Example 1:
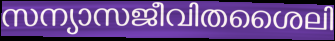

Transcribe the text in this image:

സന്യാസജീവിതശൈലി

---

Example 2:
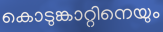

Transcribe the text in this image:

കൊടുങ്കാറ്റിനെയും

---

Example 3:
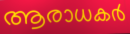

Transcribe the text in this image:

ആരാധകർ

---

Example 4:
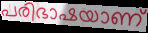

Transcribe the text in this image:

പരിഭാഷയാണ്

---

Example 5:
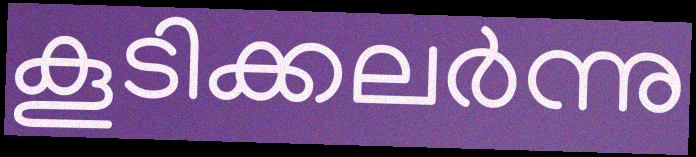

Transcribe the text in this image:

കൂടിക്കലർന്നു